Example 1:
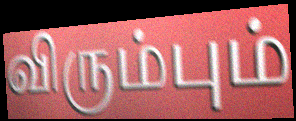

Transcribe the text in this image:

விரும்பும்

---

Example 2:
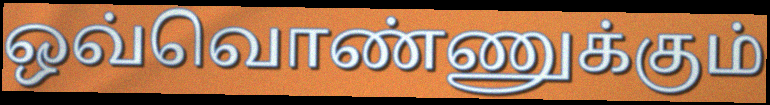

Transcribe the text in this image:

ஒவ்வொண்ணுக்கும்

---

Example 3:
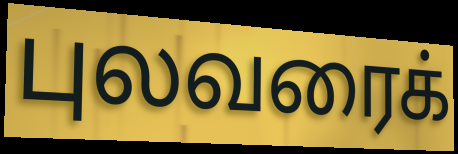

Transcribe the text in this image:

புலவரைக்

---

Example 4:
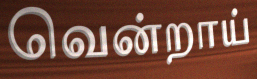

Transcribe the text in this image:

வென்றாய்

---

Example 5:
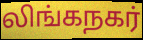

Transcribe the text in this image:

லிங்கநகர்